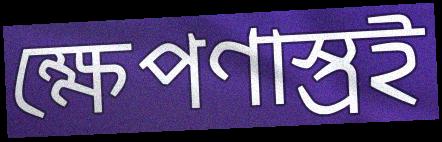
ক্ষেপণাস্ত্রই